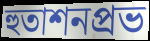
হুতাশনপ্রভ